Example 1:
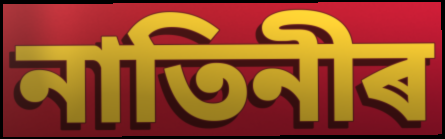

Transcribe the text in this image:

নাতিনীৰ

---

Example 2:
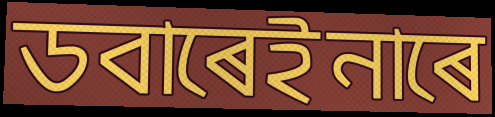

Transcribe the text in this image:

ডবাৰেইনাৰে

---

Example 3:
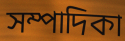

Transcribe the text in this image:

সম্পাদিকা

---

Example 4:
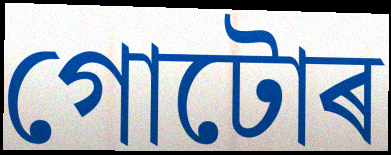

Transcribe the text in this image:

গোটোৰ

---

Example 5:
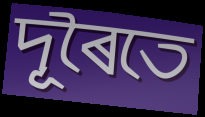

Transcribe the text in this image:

দূৰৈতে